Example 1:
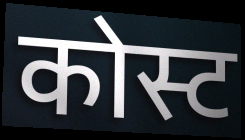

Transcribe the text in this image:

कोस्ट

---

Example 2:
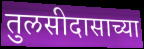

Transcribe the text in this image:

तुलसीदासाच्या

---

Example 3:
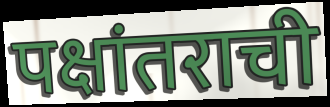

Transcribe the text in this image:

पक्षांतराची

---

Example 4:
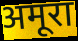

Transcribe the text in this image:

अमूरा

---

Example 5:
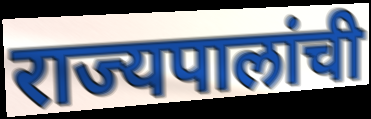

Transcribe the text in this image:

राज्यपालांची